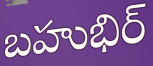
బహుభిర్